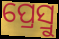
ପ୍ରେସ୍ରୁ